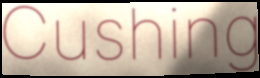
Cushing